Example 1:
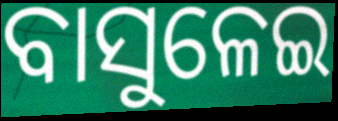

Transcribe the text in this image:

ବାସୁଳେଇ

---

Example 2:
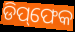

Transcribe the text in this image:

ଡିପ୍‌ଫେକ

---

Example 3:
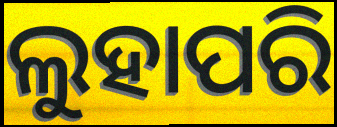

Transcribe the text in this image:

ଲୁହାପରି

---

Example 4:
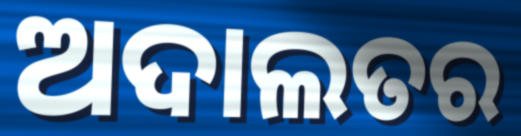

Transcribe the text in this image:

ଅଦାଲତର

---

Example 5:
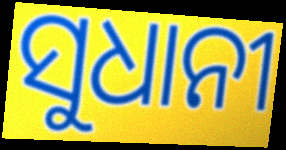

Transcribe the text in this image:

ସୁଧାନୀ